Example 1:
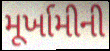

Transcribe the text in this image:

મૂર્ખામીની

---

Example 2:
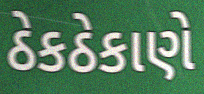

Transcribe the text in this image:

ઠેકઠેકાણે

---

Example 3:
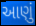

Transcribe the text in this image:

આણું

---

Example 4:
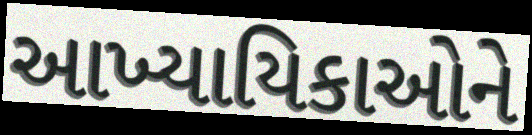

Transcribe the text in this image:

આખ્યાયિકાઓને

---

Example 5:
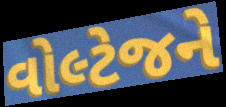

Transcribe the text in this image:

વોલ્ટેજને